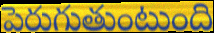
పెరుగుతుంటుంది